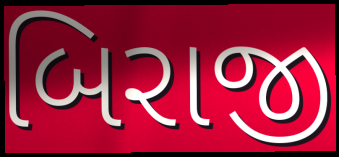
બિરાજી